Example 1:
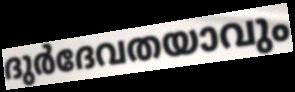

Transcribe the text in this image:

ദുർദേവതയാവും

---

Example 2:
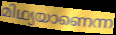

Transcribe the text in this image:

മിഥ്യയാണെന്ന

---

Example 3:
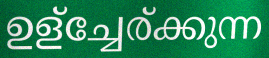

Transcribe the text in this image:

ഉള്ച്ചേര്ക്കുന്ന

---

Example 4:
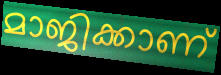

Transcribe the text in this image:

മാജിക്കാണ്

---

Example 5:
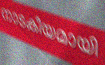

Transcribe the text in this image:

നാടകീയമായി